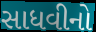
સાધવીનો